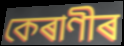
কেৰাণীৰ